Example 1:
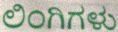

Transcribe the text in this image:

ಲಿಂಗಿಗಳು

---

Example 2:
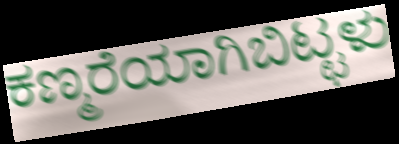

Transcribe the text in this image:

ಕಣ್ಮರೆಯಾಗಿಬಿಟ್ಟಳು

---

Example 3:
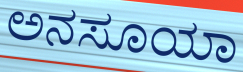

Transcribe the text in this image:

ಅನಸೂಯಾ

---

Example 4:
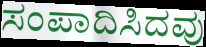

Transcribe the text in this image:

ಸಂಪಾದಿಸಿದವು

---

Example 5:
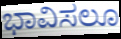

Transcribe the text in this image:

ಭಾವಿಸಲೂ